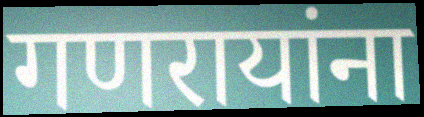
गणरायांना